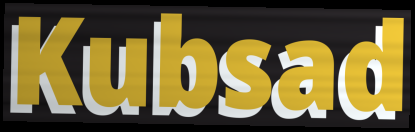
Kubsad